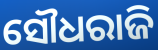
ସୌଧରାଜି